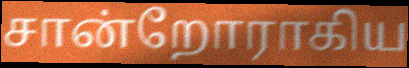
சான்றோராகிய